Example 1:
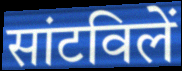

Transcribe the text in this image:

सांटविलें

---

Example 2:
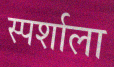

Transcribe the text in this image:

स्पर्शाला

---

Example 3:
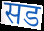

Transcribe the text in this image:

सड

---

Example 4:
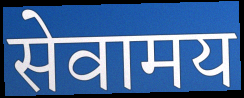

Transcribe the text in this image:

सेवामय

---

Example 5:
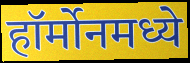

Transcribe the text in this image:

हॉर्मोनमध्ये